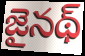
జైనథ్